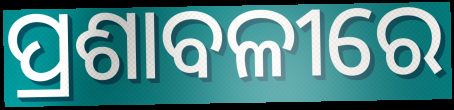
ପ୍ରଶାବଳୀରେ